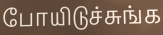
போயிடுச்சுங்க